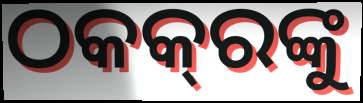
ଠକକ୍‌ରଙ୍କୁ